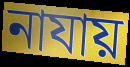
নাযায়